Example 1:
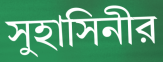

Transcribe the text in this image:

সুহাসিনীর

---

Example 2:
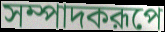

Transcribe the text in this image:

সম্পাদকরূপে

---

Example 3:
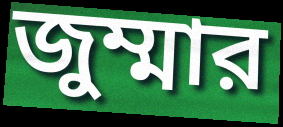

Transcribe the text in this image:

জুম্মার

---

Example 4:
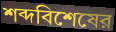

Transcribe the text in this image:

শব্দবিশেষের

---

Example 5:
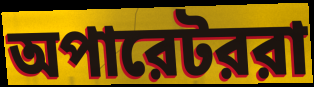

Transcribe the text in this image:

অপারেটররা